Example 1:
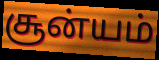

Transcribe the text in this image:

சூன்யம்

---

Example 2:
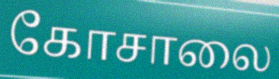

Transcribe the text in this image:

கோசாலை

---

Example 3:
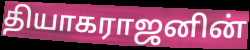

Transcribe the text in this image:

தியாகராஜனின்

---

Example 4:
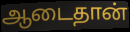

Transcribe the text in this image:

ஆடைதான்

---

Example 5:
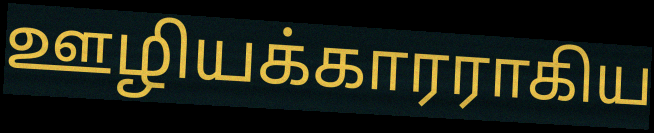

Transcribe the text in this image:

ஊழியக்காரராகிய